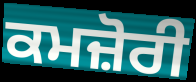
ਕਮਜ਼ੋਰੀ